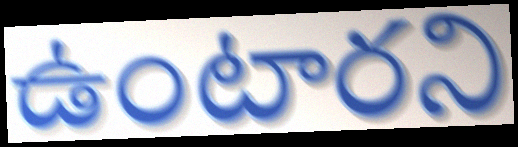
ఉంటారని